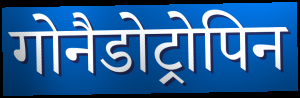
गोनैडोट्रोपिन